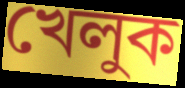
খেলুক